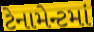
ટેનામેન્ટમાં